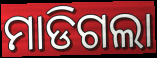
ମାଡିଗଲା